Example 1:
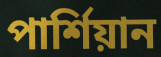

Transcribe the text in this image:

পার্শিয়ান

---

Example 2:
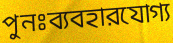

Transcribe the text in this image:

পুনঃব্যবহারযোগ্য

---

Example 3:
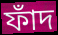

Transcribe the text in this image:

ফাঁদ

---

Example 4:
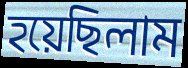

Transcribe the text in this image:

হয়েছিলাম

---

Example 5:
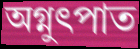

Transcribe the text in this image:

অগ্নুৎপাত